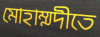
মোহাম্মদীতে